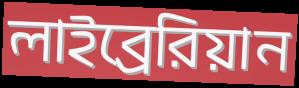
লাইব্রেরিয়ান